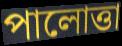
পালোত্তা